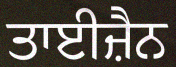
ਤਾਈਜ਼ੈਨ